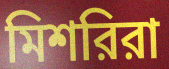
মিশরিরা